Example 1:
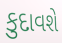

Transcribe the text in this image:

કુદાવશે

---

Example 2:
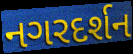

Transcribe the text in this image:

નગરદર્શન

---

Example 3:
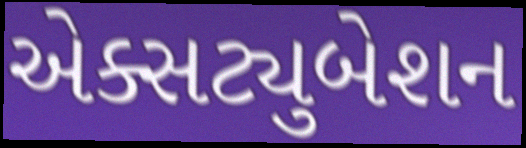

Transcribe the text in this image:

એક્સટ્યુબેશન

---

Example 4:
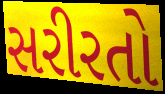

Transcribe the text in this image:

સરીરતો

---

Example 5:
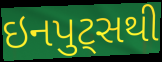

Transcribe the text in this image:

ઇનપુટ્સથી